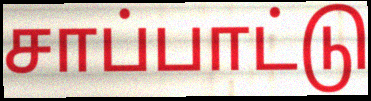
சாப்பாட்டு